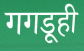
गगडूही